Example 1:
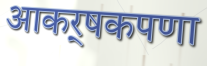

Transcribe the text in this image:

आकर्षकपणा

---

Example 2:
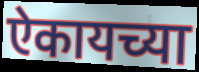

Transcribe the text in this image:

ऐकायच्या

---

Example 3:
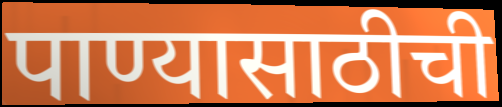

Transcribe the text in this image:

पाण्यासाठीची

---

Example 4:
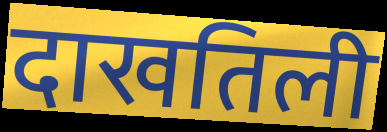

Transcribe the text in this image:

दाखतिली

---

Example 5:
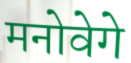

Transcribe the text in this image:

मनोवेगे